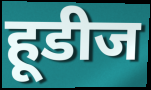
हूडीज